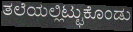
ತಲೆಯಲ್ಲಿಟ್ಟುಕೊಂಡು